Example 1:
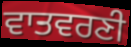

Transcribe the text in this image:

ਵਾਤਵਰਣੀ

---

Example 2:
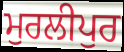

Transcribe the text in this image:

ਮੁਰਲੀਪੁਰ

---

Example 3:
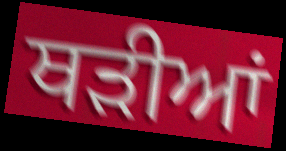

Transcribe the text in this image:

ਥੜੀਆਂ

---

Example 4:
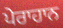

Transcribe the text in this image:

ਪੇਰਾਹਾਨ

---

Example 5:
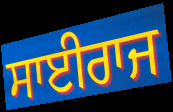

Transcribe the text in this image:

ਸਾਈਰਾਜ